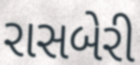
રાસબેરી